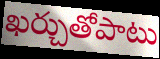
ఖర్చుతోపాటు